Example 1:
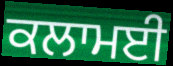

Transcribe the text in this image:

ਕਲਾਮਈ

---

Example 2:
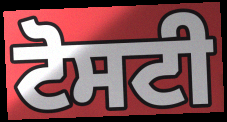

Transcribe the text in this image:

ਟੋਸਟੀ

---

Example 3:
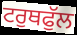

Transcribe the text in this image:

ਟਰੁਥਫੁੱਲ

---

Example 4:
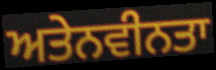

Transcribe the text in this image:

ਅਤੇਨਵੀਨਤਾ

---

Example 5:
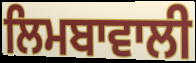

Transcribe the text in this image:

ਲਿਮਬਾਵਾਲੀ